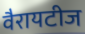
वैरायटीज